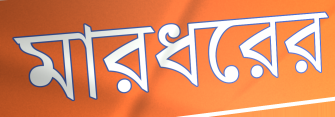
মারধরের